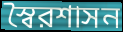
স্বৈরশাসন